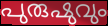
പുരുഷുവും